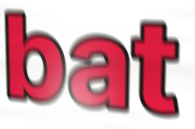
bat